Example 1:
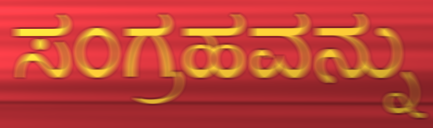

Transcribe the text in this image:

ಸಂಗ್ರಹವನ್ನು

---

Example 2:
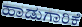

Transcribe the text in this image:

ಹಾಡುಗಾರಿಕೆ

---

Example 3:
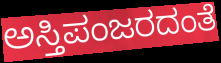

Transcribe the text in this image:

ಅಸ್ತಿಪಂಜರದಂತೆ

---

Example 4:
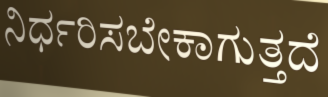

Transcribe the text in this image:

ನಿರ್ಧರಿಸಬೇಕಾಗುತ್ತದೆ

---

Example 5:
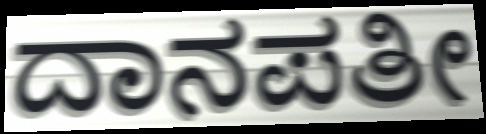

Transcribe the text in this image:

ದಾನಪತೀ